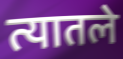
त्यातले